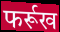
फर्रूख